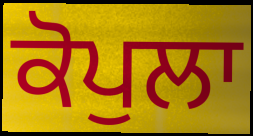
ਕੋਪੁਲਾ